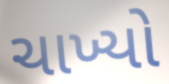
ચાખ્યો